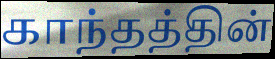
காந்தத்தின்